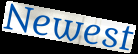
Newest